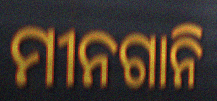
ମୀନଗାନି